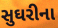
સુઘરીના